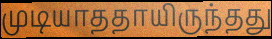
முடியாததாயிருந்தது